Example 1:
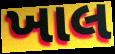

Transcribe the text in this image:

ખાલ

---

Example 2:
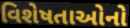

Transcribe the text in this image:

વિશેષતાઓનો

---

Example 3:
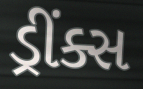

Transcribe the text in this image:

ડ્રીંક્સ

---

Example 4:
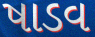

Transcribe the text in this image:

ષાડવ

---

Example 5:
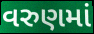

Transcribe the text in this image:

વરુણમાં